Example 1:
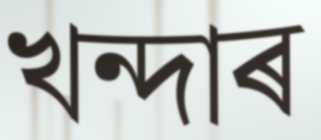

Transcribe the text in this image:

খন্দাৰ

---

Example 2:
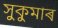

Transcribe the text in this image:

সুকুমাৰ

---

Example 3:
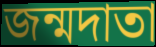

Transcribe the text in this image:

জন্মদাতা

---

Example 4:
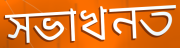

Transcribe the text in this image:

সভাখনত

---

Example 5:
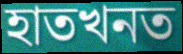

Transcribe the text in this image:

হাতখনত